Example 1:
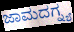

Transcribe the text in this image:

ಜಾಮದಗ್ನ್ಯ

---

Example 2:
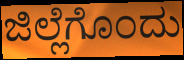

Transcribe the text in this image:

ಜಿಲ್ಲೆಗೊಂದು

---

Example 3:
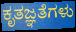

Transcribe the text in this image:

ಕೃತಜ್ಞತೆಗಳು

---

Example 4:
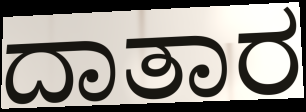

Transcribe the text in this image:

ದಾತಾರ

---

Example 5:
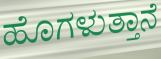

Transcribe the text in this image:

ಹೊಗಳುತ್ತಾನೆ